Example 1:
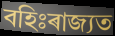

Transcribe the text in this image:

বহিঃৰাজ্যত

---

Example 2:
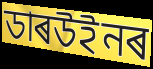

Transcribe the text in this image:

ডাৰউইনৰ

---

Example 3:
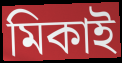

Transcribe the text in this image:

মিকাই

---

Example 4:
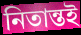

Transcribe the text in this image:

নিতান্তই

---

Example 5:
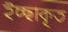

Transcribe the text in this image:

ইচ্ছাকৃত